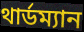
থার্ডম্যান